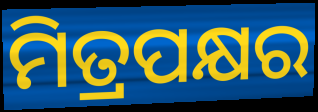
ମିତ୍ରପକ୍ଷର